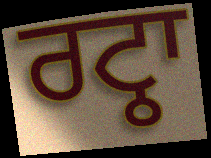
ਰਟ੍ਠਾ